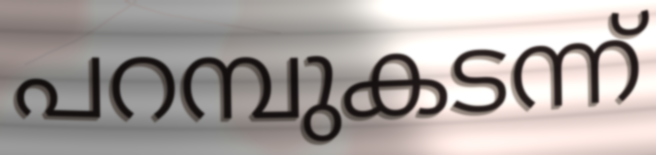
പറമ്പുകടന്ന്